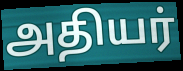
அதியர்